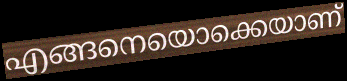
എങ്ങനെയൊക്കെയാണ്